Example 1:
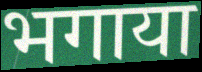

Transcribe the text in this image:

भगाया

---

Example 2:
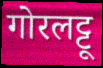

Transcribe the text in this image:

गोरलट्टू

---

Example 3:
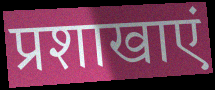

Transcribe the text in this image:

प्रशाखाएं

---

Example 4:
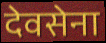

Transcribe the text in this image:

देवसेना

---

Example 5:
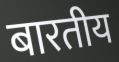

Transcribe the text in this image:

बारतीय